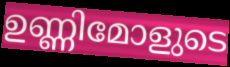
ഉണ്ണിമോളുടെ